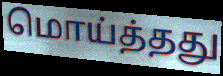
மொய்த்தது